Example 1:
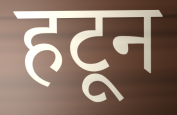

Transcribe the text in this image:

हटून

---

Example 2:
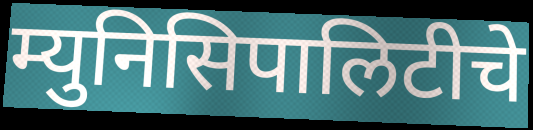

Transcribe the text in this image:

म्युनिसिपालिटीचे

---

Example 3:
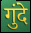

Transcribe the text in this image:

गुंदे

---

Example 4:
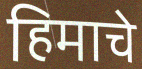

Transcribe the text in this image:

हिमाचे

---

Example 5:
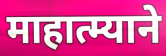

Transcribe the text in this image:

माहात्म्याने